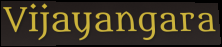
Vijayangara